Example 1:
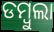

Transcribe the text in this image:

ଡମ୍ୱୁଲା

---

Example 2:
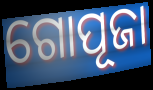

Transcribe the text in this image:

ଗୋପୂଜା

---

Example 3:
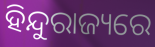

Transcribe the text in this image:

ହିନ୍ଦୁରାଜ୍ୟରେ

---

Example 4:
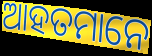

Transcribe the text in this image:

ଆହତମାନେ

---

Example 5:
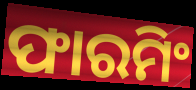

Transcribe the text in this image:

ଫାରମିଂ